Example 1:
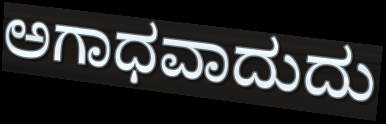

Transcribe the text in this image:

ಅಗಾಧವಾದುದು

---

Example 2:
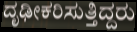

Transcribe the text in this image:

ದೃಢೀಕರಿಸುತ್ತಿದ್ದರು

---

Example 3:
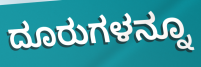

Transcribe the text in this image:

ದೂರುಗಳನ್ನೂ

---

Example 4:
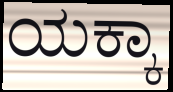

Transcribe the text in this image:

ಯಕ್ಕಾ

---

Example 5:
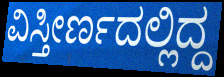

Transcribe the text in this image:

ವಿಸ್ತೀರ್ಣದಲ್ಲಿದ್ದ